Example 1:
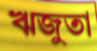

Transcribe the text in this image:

ঋজুতা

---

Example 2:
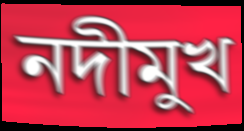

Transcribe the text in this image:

নদীমুখ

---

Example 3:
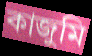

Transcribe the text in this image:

কাজুমি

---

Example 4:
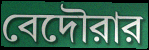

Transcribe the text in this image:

বেদৌরার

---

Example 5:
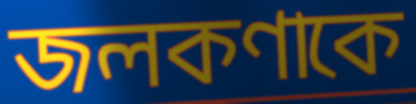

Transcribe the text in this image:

জলকণাকে